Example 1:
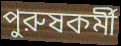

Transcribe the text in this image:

পুরুষকর্মী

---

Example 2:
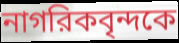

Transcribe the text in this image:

নাগরিকবৃন্দকে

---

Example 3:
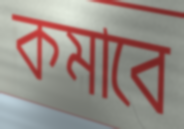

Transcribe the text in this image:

কমাবে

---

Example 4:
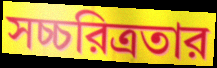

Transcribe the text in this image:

সচ্চরিত্রতার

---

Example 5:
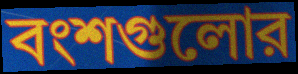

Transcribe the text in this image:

বংশগুলোর